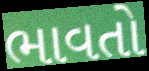
ભાવતો